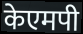
केएमपी